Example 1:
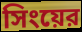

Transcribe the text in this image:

সিংয়ের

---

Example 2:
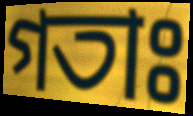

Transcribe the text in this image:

গতাঃ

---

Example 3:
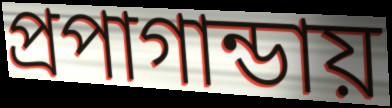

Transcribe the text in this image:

প্রপাগান্ডায়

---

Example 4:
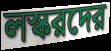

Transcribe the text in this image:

লস্করদের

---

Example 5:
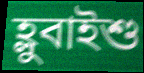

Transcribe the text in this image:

হ্লুবাইশু